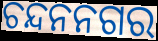
ଚନ୍ଦନନଗର